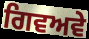
ਗਿਵਅਵੇ